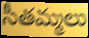
సీతమ్మలు